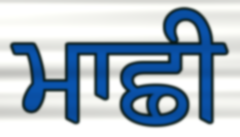
ਮਾਛੀ